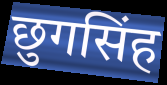
छुगसिंह